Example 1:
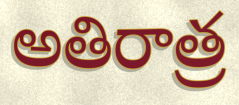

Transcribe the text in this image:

అతిరాత్ర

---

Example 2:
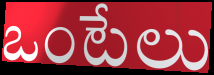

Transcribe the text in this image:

ఒంటేలు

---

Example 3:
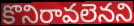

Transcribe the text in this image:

కొనిరావలెనని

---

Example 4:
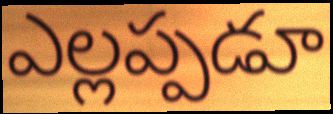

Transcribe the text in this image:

ఎల్లప్పడూ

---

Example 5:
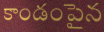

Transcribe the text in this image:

కాండంపైన